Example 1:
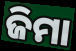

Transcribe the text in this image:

ଜିମା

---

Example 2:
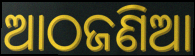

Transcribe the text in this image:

ଆଠଜଣିଆ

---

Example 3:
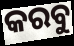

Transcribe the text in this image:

କରବୁ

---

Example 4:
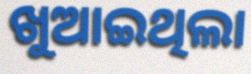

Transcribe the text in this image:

ଖୁଆଇଥିଲା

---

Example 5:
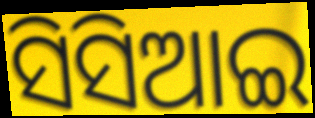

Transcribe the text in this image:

ସିସିଆଇ